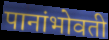
पानांभोवती